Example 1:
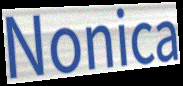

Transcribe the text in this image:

Nonica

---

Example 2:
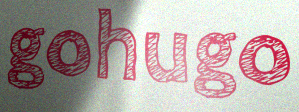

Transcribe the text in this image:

gohugo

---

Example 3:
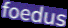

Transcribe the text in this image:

foedus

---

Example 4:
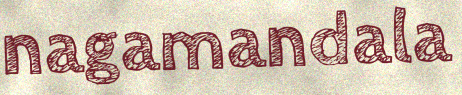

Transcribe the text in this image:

nagamandala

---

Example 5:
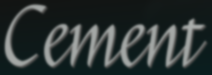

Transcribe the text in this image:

Cement